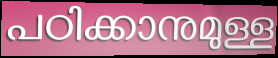
പഠിക്കാനുമുള്ള